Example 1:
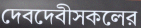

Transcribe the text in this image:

দেবদেবীসকলের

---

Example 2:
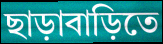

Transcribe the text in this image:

ছাড়াবাড়িতে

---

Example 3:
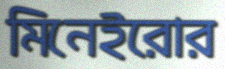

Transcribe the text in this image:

মিনেইরোর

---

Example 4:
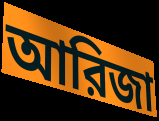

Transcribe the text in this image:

আরিজা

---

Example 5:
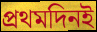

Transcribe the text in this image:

প্রথমদিনই